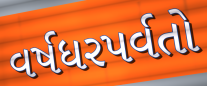
વર્ષધરપર્વતો